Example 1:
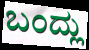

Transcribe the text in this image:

ಬಂದ್ಲು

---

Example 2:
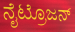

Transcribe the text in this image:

ನೈಟ್ರೊಜನ್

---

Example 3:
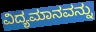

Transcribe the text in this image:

ವಿದ್ಯಮಾನವನ್ನು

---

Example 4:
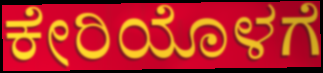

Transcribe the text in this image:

ಕೇರಿಯೊಳಗೆ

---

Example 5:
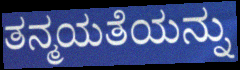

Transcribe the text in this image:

ತನ್ಮಯತೆಯನ್ನು